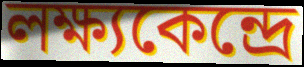
লক্ষ্যকেন্দ্রে